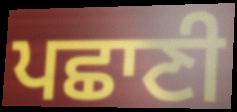
ਪਛਾਣੀ